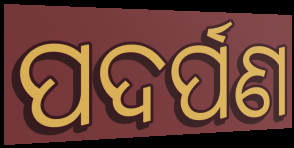
ପଦର୍ପଣ